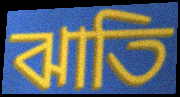
ঝাতি